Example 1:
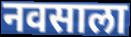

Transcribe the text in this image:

नवसाला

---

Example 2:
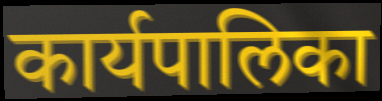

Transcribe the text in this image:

कार्यपालिका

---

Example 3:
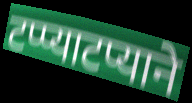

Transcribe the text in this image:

टप्प्याटप्याने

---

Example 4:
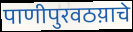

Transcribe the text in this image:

पाणीपुरवठय़ाचे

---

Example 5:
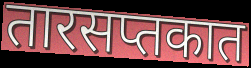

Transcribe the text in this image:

तारसप्तकात